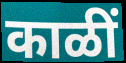
काळीं